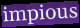
impious